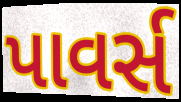
પાવર્સ